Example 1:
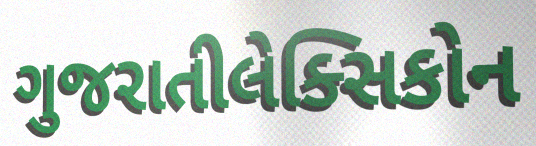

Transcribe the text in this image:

ગુજરાતીલેક્સિકોન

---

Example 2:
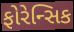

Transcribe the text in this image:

ફોરેન્સિક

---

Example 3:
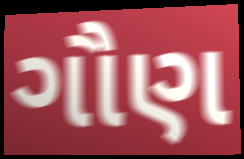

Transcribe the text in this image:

ગૌણ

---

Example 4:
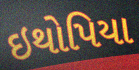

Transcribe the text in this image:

ઇથોપિયા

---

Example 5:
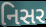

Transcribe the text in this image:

નિસર